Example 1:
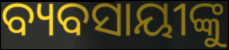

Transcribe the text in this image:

ବ୍ୟବସାୟୀଙ୍କୁ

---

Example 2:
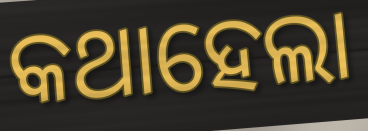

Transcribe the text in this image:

କଥାହେଲା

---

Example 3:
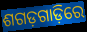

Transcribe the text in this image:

ଶଗଡ଼ଗାଡ଼ିରେ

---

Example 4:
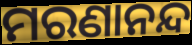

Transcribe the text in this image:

ମରଣାନନ୍ଦ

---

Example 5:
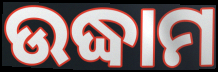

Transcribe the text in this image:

ଉଦ୍ଧାମ